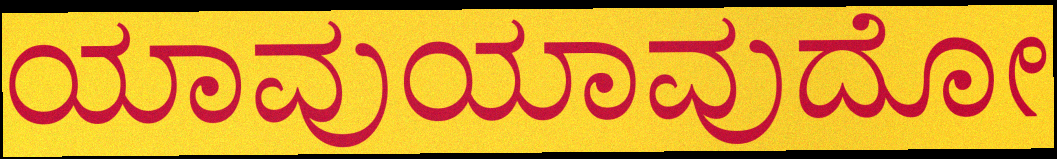
ಯಾವುಯಾವುದೋ